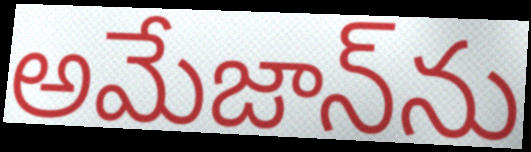
అమేజాన్‌ను